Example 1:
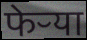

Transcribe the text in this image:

फेऱ्या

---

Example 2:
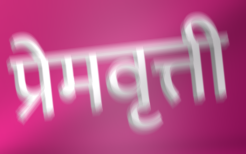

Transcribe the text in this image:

प्रेमवृत्ती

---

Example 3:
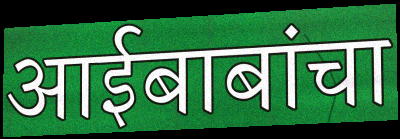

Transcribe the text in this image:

आईबाबांचा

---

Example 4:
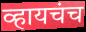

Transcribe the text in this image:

व्हायचंच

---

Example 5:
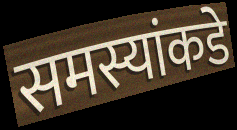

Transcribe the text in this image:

समस्यांकडे